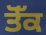
ਤੋੱਕ